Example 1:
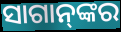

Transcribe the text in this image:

ସାଗାନ୍‌ଙ୍କର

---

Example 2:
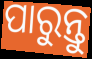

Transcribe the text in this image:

ପାରୁନ୍ତୁ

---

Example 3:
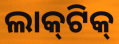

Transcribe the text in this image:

ଲାକ୍‌ଟିକ୍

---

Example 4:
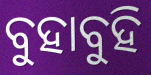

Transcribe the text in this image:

ବୁହାବୁହି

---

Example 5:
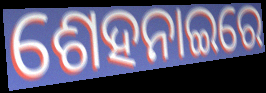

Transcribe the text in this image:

ଶେହନାଇରେ